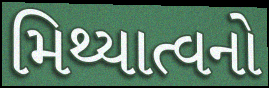
મિથ્યાત્વનો